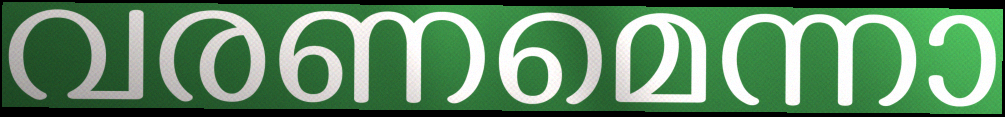
വരണമെന്നാ